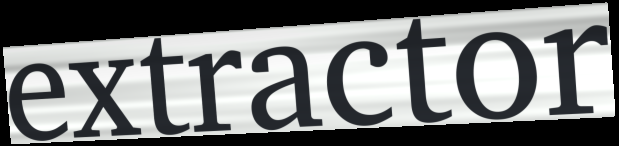
extractor